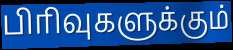
பிரிவுகளுக்கும்